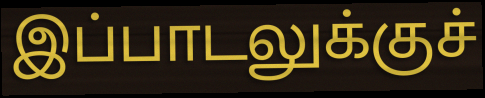
இப்பாடலுக்குச்